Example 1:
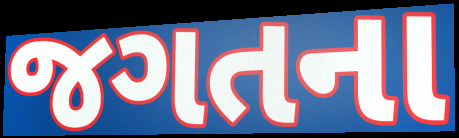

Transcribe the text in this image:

જગતના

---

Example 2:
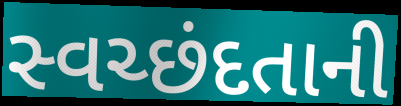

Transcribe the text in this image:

સ્વચ્છંદતાની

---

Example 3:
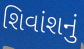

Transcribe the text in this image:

શિવાંશનું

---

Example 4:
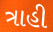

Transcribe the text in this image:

ત્રાહી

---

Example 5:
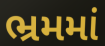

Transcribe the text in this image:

ભ્રમમાં